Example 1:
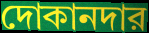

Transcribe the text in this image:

দোকানদার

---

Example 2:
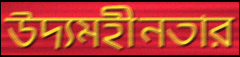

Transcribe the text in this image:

উদ্যমহীনতার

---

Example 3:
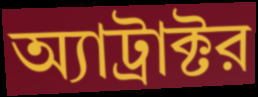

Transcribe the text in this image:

অ্যাট্রাক্টর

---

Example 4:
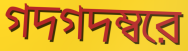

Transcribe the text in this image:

গদগদম্বরে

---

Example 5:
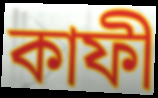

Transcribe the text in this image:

কাফী